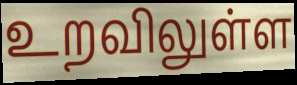
உறவிலுள்ள